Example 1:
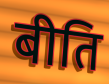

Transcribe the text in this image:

बीति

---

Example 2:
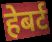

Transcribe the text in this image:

हेबर्ट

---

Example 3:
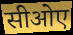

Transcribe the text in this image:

सीओए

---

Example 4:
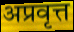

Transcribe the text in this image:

अप्रवृत्त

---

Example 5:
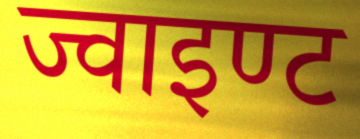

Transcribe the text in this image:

ज्वाइण्ट